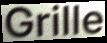
Grille